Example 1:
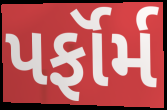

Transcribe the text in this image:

પર્ફૉર્મ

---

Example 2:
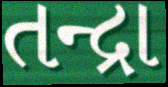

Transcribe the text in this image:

તન્દ્રા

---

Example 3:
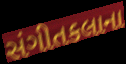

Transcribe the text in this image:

સંગીતકલાના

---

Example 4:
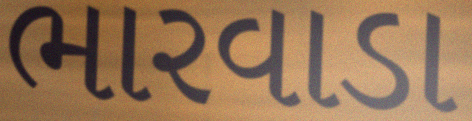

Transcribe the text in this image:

ભારવાડા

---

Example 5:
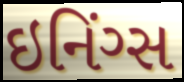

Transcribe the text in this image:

ઇનિંગ્સ